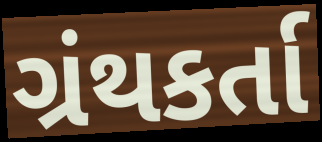
ગ્રંથકર્તા